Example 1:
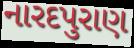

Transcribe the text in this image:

નારદપુરાણ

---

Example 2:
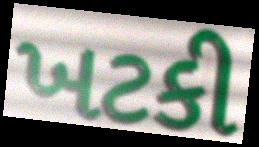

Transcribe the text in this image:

ખટકી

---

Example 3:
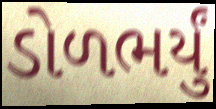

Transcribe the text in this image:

ડોળભર્યું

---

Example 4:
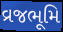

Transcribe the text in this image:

વ્રજભૂમિ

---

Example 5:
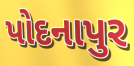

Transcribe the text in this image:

પોદનાપુર